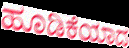
ಹೂಡಿಕೆಯಾದ